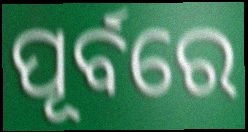
ପୂର୍ବରେ